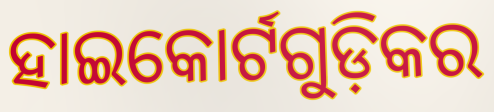
ହାଇକୋର୍ଟଗୁଡ଼ିକର